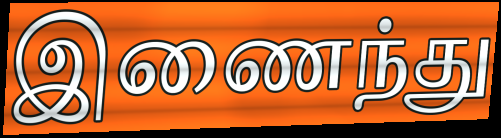
இணைந்து